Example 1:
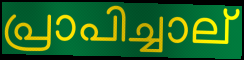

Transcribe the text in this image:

പ്രാപിച്ചാല്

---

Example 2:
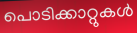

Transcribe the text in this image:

പൊടിക്കാറ്റുകൾ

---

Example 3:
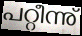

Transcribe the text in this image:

പറ്റീന്നു്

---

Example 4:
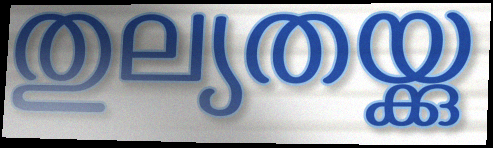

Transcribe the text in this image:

തുല്യതയ്ക്കു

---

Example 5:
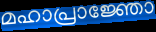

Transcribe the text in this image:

മഹാപ്രാജ്ഞോ